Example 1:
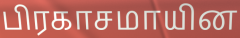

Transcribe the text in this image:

பிரகாசமாயின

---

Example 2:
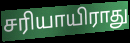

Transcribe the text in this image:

சரியாயிராது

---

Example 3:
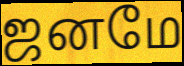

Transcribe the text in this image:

ஜனமே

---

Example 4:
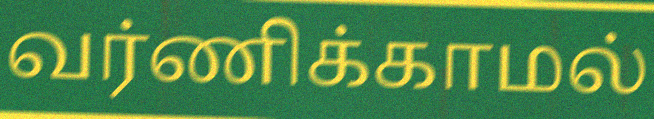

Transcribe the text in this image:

வர்ணிக்காமல்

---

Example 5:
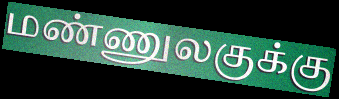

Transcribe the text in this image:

மண்ணுலகுக்கு